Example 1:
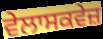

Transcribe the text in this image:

ਵੇਲਾਸਕਵੇਜ਼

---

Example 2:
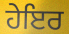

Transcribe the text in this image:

ਹੇਇਰ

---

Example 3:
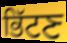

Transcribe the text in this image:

ਭਿੱਟਣ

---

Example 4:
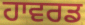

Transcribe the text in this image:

ਹਾਵਰਡ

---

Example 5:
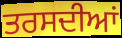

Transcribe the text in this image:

ਤਰਸਦੀਆਂ